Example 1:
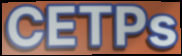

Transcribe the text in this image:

CETPs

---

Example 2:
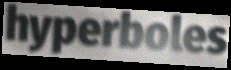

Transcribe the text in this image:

hyperboles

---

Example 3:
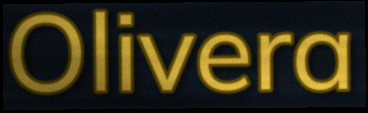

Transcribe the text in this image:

Olivera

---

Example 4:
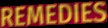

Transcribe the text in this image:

REMEDIES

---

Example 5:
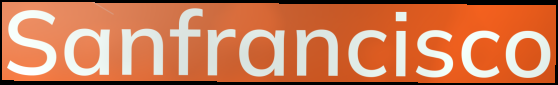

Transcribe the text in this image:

Sanfrancisco